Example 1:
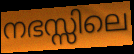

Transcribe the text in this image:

നഭസ്സിലെ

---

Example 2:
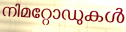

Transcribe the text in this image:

നിമറ്റോഡുകൾ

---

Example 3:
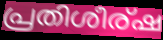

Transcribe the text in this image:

പ്രതിശീര്ഷ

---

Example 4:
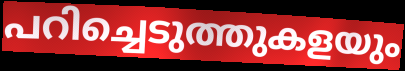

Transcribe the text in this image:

പറിച്ചെടുത്തുകളയും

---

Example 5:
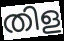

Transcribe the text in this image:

തിള